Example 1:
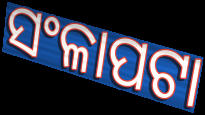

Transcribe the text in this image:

ସଂଳାପଟା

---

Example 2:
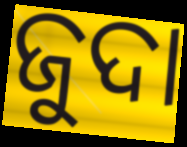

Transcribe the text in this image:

ଜୁଦା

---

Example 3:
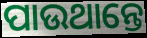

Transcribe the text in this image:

ପାଉଥାନ୍ତେ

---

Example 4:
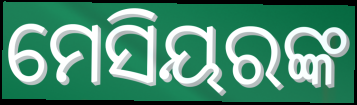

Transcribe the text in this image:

ମେସିୟରଙ୍କ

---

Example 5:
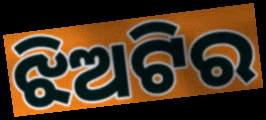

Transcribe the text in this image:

ଝିଅଟିର